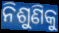
ନିଶୁଣିକୁ